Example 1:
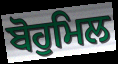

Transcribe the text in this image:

ਬੋਹੁਮਿਲ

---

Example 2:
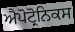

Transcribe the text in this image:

ਐਪੋਟ੍ਰੋਨਿਕਸ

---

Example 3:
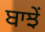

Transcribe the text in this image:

ਬਾਝੇਂ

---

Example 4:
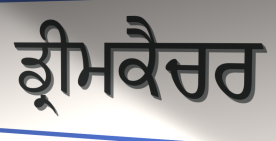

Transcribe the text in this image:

ਡ੍ਰੀਮਕੈਚਰ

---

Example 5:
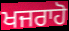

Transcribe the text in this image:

ਖਜਰਾਹੋ